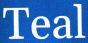
Teal